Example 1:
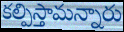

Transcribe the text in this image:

కల్పిస్తామన్నారు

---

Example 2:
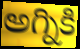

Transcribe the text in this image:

అగ్నికి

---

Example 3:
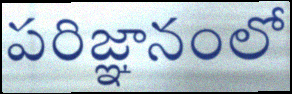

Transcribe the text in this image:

పరిజ్ఞానంలో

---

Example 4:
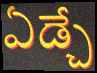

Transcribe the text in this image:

ఏడ్చే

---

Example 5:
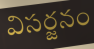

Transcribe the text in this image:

విసర్జనం